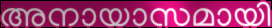
അനായാസമായി